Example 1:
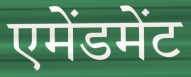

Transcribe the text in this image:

एमेंडमेंट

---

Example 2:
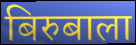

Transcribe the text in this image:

बिरुबाला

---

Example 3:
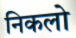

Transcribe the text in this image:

निकलो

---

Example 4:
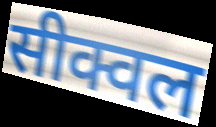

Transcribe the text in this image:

सीक्वल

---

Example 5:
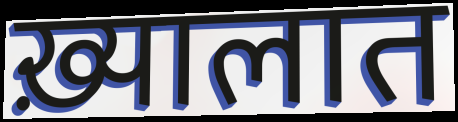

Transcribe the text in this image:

ख़्यालात